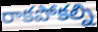
రాకపోకల్ని